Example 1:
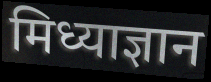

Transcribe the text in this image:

मिध्याज्ञान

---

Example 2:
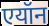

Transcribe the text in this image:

एयॉन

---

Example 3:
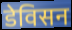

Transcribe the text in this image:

डेविसन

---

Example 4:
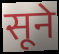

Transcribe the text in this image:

सूने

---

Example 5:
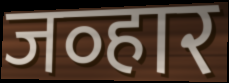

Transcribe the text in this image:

जव्हार